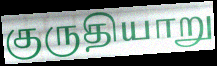
குருதியாறு